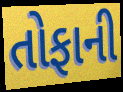
તોફાની